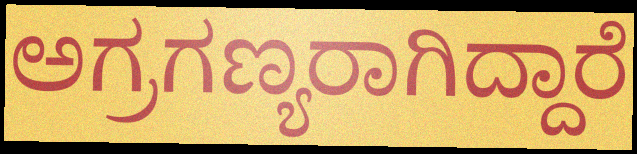
ಅಗ್ರಗಣ್ಯರಾಗಿದ್ದಾರೆ